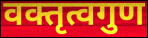
वक्तृत्वगुण